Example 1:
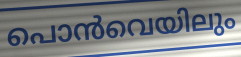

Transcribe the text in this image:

പൊൻവെയിലും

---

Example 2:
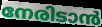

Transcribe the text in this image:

നേരിടാൻ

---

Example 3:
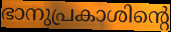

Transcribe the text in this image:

ഭാനുപ്രകാശിന്റെ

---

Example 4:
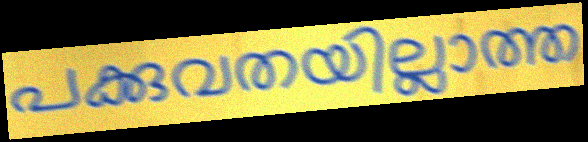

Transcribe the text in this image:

പക്കുവതയില്ലാത്ത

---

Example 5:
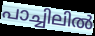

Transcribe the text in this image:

പാച്ചിലിൽ